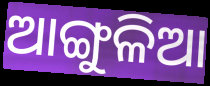
ଆଙ୍ଗୁଳିଆ